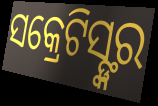
ସକ୍ରେଟିସ୍ଙ୍କର